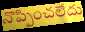
నొప్పించలేదు